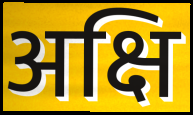
अक्षि